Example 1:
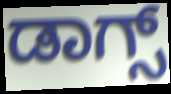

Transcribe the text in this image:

ಡಾಗ್ಸ್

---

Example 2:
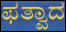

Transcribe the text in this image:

ಫತ್ವಾದ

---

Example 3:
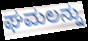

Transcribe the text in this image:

ಘಮಲನ್ನು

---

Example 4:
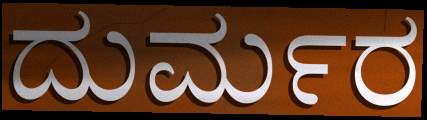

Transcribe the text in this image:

ದುರ್ಮರ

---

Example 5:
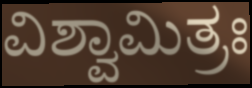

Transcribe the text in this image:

ವಿಶ್ವಾಮಿತ್ರಃ